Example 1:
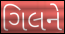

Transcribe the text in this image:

ગિલને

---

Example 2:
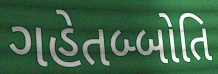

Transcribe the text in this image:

ગહેતબ્બોતિ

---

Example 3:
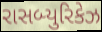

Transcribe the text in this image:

રાસબ્યુરિકેઝ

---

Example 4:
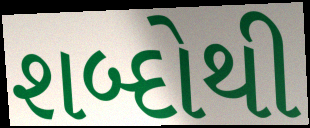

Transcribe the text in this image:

શબ્દોથી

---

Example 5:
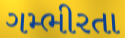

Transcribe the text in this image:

ગમ્ભીરતા